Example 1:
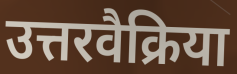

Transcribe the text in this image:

उत्तरवैक्रिया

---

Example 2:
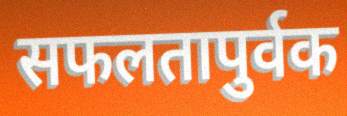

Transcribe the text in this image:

सफलतापुर्वक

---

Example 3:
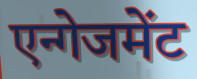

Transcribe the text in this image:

एन्गेजमेंट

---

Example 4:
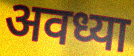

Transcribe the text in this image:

अवध्या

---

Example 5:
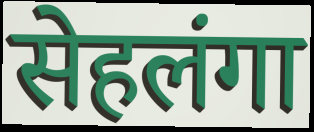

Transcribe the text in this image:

सेहलंगा